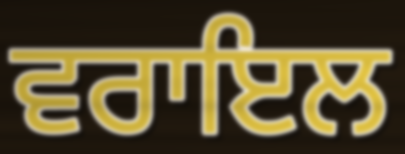
ਵਰਾਇਲ